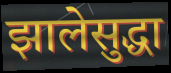
झालेसुद्धा